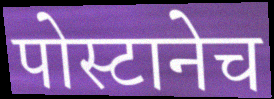
पोस्टानेच